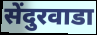
सेंदुरवाडा